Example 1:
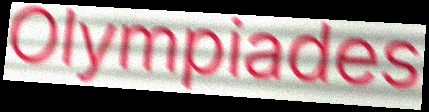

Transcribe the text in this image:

Olympiades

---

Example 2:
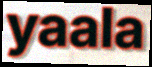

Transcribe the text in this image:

yaala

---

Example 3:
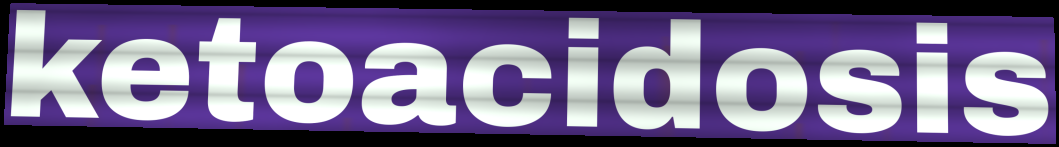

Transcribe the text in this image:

ketoacidosis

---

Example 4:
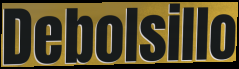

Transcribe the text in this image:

Debolsillo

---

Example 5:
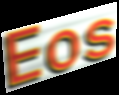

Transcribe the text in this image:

Eos